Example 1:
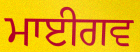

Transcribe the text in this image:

ਮਾਈਗਵ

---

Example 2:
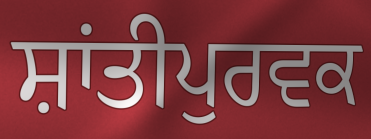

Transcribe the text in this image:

ਸ਼ਾਂਤੀਪੁਰਵਕ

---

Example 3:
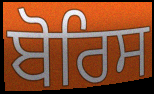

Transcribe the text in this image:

ਬੋਰਿਸ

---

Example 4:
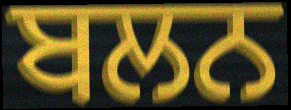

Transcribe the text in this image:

ਬਲਨ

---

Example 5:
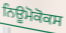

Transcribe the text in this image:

ਨਿਊਮੋਕੋਕਸ